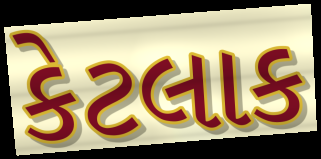
કેટલાક